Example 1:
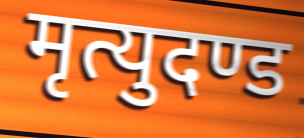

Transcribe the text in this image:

मृत्युदण्ड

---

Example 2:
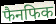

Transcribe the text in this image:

फैनफिक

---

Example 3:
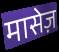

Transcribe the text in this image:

मासेज़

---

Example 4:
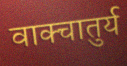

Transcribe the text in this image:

वाक्चातुर्य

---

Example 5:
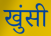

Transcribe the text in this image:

खुंसी